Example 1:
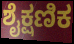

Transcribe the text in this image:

ಶೈಕ್ಷಣಿಕ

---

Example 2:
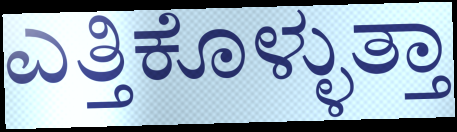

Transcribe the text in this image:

ಎತ್ತಿಕೊಳ್ಳುತ್ತಾ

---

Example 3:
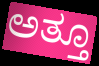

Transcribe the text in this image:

ಅತ್ತೂ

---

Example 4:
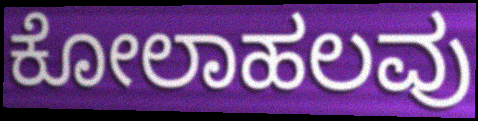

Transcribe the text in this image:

ಕೋಲಾಹಲವು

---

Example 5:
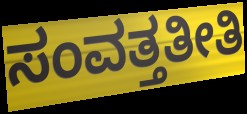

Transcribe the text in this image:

ಸಂವತ್ತತೀತಿ